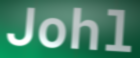
Johl